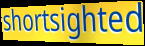
shortsighted